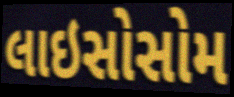
લાઇસોસોમ